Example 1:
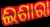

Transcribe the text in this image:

ଈଶାରା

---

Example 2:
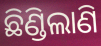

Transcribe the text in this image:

ଛିଣ୍ଡିଲାଣି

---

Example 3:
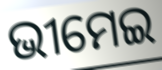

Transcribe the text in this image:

ଭୀମେଇ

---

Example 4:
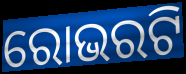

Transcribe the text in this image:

ରୋଭରଟି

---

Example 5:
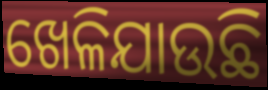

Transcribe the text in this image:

ଖେଳିଯାଉଛି